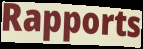
Rapports